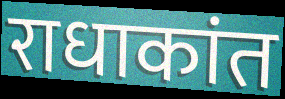
राधाकांत